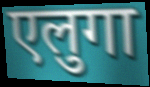
एलुगा